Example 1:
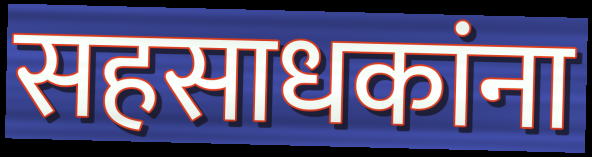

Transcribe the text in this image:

सहसाधकांना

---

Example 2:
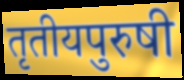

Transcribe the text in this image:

तृतीयपुरुषी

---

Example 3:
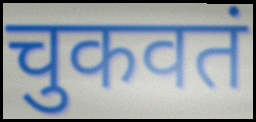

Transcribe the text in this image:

चुकवतं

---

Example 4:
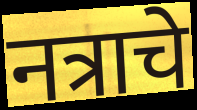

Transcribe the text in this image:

नत्राचे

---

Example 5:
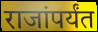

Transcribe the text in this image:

राजांपर्यंत